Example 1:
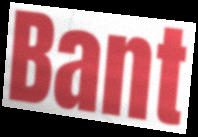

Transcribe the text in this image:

Bant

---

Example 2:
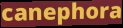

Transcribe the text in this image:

canephora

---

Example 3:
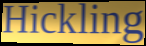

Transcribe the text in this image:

Hickling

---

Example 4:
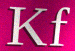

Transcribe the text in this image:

Kf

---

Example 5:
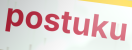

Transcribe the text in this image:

postuku